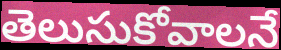
తెలుసుకోవాలనే